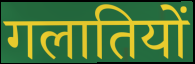
गलातियों